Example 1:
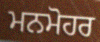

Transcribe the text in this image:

ਮਨਮੋਹਰ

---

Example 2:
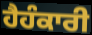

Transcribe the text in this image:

ਹੈਹੰਕਾਰੀ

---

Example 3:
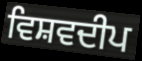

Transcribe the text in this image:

ਵਿਸ਼ਵਦੀਪ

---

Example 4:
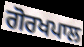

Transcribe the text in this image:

ਗੋਰਖਪਾਲ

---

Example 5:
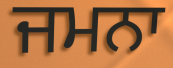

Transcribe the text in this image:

ਜਮਨਾ